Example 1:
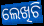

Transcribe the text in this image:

ଲେଖିଚି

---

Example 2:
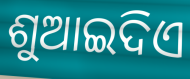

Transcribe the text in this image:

ଶୁଆଇଦିଏ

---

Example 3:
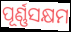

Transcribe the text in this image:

ପୂର୍ଣ୍ଣସକ୍ଷମ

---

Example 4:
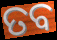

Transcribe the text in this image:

ତବ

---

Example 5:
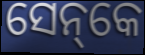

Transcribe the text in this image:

ସେନ୍‌କେ